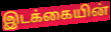
இடக்கையின்